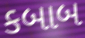
કબાબ